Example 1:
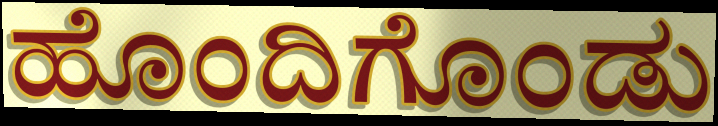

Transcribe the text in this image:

ಹೊಂದಿಗೊಂಡು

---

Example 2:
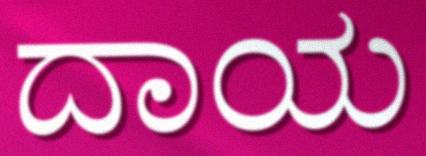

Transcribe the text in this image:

ದಾಯ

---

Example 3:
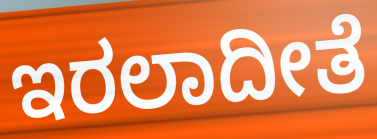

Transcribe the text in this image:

ಇರಲಾದೀತೆ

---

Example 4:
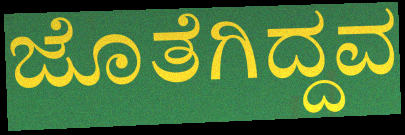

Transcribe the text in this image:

ಜೊತೆಗಿದ್ದವ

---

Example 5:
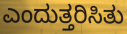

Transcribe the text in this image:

ಎಂದುತ್ತರಿಸಿತು